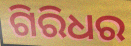
ଗିରିଧର